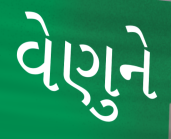
વેણુને